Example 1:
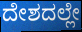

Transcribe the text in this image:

ದೇಶದಲ್ಲೇ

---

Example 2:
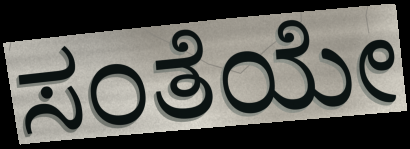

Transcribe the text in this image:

ಸಂತೆಯೇ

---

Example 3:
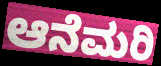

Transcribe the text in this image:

ಆನೆಮರಿ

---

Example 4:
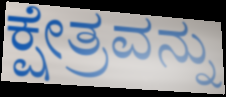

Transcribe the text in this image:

ಕ್ಷೇತ್ರವನ್ನು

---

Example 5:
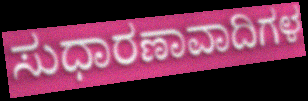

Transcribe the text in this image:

ಸುಧಾರಣಾವಾದಿಗಳ